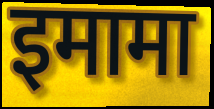
इमामा